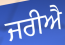
ਜਰੀਐ